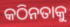
କଠିନତାକୁ